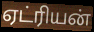
ஏட்ரியன்